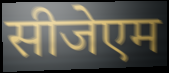
सीजेएम